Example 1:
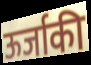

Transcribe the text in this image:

ऊर्जाकी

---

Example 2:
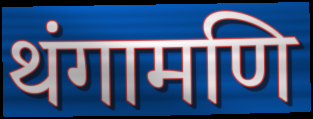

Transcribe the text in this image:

थंगामणि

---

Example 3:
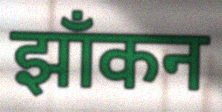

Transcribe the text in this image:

झाँकन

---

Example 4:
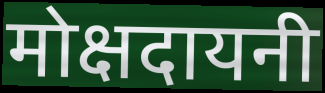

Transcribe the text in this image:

मोक्षदायनी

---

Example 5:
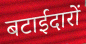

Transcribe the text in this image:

बटाईदारों